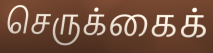
செருக்கைக்